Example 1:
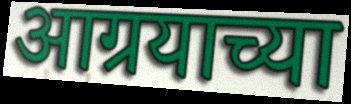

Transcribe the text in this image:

आग्रयाच्या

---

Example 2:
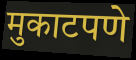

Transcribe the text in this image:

मुकाटपणे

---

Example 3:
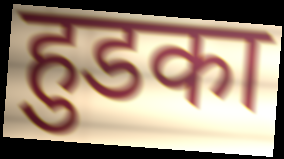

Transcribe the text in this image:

हुडका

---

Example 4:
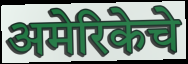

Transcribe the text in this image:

अमेरिकेचे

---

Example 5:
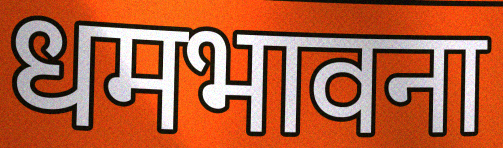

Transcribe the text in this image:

धमभावना